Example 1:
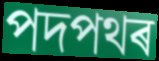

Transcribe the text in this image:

পদপথৰ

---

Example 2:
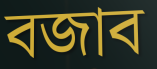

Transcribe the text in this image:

বজাব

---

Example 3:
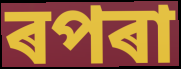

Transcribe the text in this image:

ৰপৰা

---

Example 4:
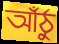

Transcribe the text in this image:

আঁঠু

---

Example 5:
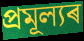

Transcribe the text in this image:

প্ৰমূল্যৰ